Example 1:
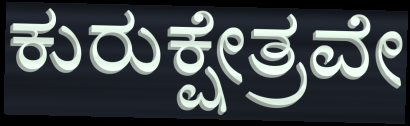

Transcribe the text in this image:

ಕುರುಕ್ಷೇತ್ರವೇ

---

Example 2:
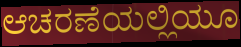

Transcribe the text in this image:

ಆಚರಣೆಯಲ್ಲಿಯೂ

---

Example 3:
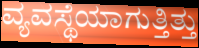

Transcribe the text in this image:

ವ್ಯವಸ್ಥೆಯಾಗುತ್ತಿತ್ತು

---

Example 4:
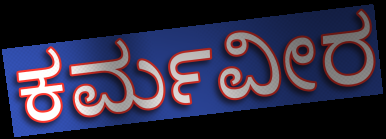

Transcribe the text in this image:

ಕರ್ಮವೀರ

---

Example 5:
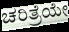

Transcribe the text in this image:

ಚರಿತ್ರೆಯೇ